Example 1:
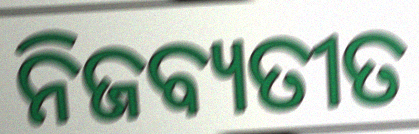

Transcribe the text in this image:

ନିଜବ୍ୟତୀତ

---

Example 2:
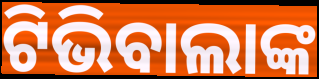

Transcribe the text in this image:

ଟିଭିବାଲାଙ୍କ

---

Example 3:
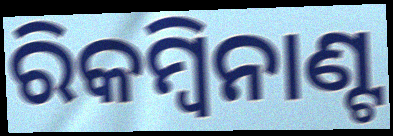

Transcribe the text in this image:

ରିକମ୍ବିନାଣ୍ଟ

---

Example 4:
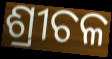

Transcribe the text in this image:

ଶ୍ରୀଚଳ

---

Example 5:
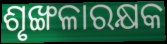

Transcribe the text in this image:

ଶୃଙ୍ଖଳାରକ୍ଷକ